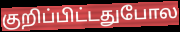
குறிப்பிட்டதுபோல